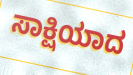
ಸಾಕ್ಷಿಯಾದ